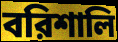
বরিশালি